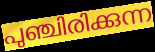
പുഞ്ചിരിക്കുന്ന